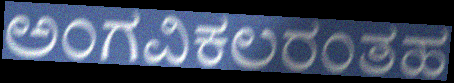
ಅಂಗವಿಕಲರಂತಹ